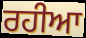
ਰਹੀਆ